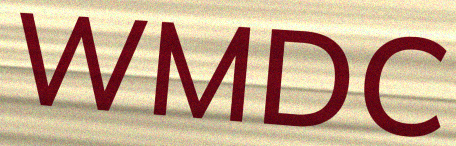
WMDC